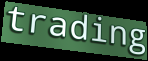
trading